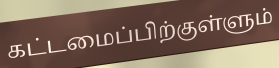
கட்டமைப்பிற்குள்ளும்